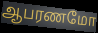
ஆபரணமோ